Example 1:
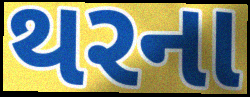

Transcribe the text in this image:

થરના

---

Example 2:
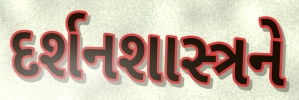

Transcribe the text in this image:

દર્શનશાસ્ત્રને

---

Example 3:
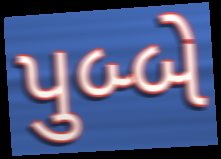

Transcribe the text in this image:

પુબ્બે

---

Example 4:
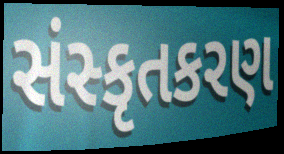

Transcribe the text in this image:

સંસ્કૃતકરણ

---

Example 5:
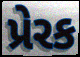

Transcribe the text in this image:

પ્રેરક